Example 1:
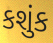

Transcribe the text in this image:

કશુંક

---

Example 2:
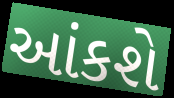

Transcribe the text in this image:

આંકશે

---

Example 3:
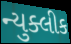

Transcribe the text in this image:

ન્યુક્લીક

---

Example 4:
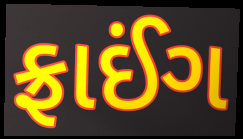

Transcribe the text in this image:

ફ્રાઈંગ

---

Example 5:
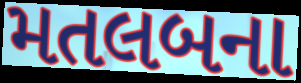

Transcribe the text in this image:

મતલબના